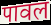
पावल